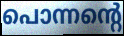
പൊന്നന്റെ